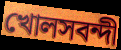
খোলসবন্দী